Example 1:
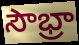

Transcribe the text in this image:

సౌభ్రా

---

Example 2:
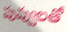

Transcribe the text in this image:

పువ్వులతో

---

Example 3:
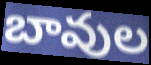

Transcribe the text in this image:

బావుల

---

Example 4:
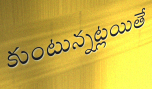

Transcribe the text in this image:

కుంటున్నట్లయితే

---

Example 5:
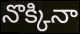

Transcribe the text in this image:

నొక్కినా